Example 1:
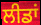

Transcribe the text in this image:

ਲੀਡਾਂ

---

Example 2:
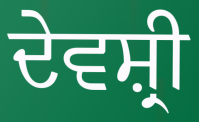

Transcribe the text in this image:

ਦੇਵਸ਼੍ਰੀ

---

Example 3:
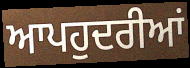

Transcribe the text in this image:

ਆਪਹੁਦਰੀਆਂ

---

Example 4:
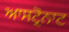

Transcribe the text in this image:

ਆਸਟ੍ਰੋਨਾਟ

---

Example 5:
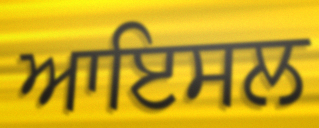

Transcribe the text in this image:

ਆਇਸਲ